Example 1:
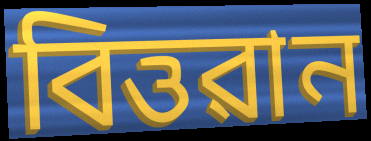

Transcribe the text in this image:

বিত্তৱান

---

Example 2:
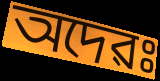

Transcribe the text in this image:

অদেৱঃ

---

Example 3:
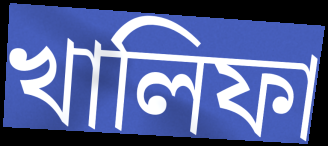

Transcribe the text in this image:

খালিফা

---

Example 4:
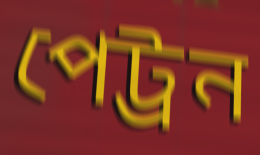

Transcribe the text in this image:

পেট্ৰন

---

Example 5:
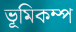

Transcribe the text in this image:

ভূমিকম্প